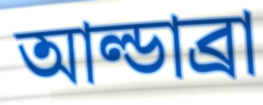
আল্ডাব্রা